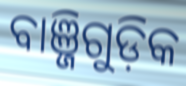
ବାଞ୍ଜିଗୁଡ଼ିକ